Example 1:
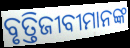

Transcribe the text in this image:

ବୃତ୍ତିଜୀବୀମାନଙ୍କ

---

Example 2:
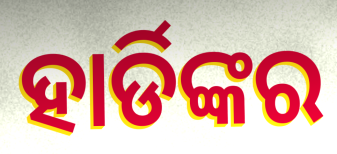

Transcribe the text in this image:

ହାର୍ଡିଙ୍କର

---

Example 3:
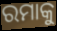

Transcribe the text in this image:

ରମାକୁ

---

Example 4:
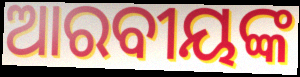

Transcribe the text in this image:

ଆରବୀୟଙ୍କ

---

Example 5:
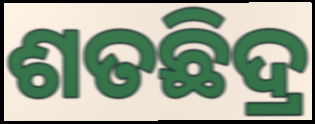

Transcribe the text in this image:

ଶତଛିଦ୍ର